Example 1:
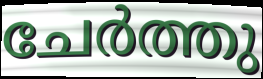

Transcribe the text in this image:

ചേർത്തു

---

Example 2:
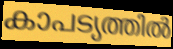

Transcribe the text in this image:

കാപട്യത്തിൽ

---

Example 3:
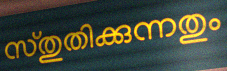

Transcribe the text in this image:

സ്തുതിക്കുന്നതും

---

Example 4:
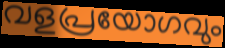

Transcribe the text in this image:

വളപ്രയോഗവും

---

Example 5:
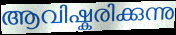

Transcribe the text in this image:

ആവിഷ്കരിക്കുന്നു